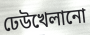
ঢেউখেলানো